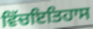
ਵਿੱਚਇਤਿਹਾਸ